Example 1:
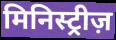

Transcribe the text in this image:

मिनिस्ट्रीज़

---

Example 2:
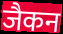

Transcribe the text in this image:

जैकन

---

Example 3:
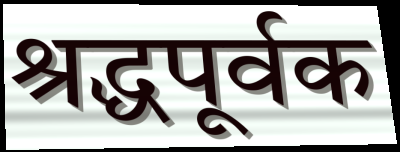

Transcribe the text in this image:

श्रद्धपूर्वक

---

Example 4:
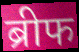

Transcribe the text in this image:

ब्रीफ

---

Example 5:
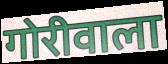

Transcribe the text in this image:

गोरीवाला